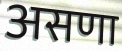
असणा